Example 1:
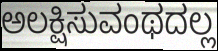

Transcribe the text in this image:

ಅಲಕ್ಷಿಸುವಂಥದಲ್ಲ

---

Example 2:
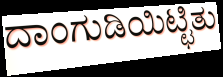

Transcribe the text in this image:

ದಾಂಗುಡಿಯಿಟ್ಟಿತು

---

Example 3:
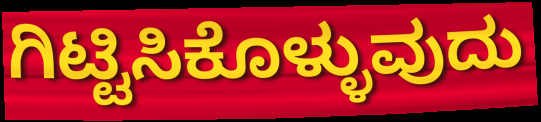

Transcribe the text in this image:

ಗಿಟ್ಟಿಸಿಕೊಳ್ಳುವುದು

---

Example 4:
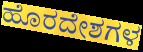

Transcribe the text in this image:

ಹೊರದೇಶಗಳ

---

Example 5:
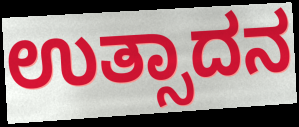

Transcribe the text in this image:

ಉತ್ಸಾದನ